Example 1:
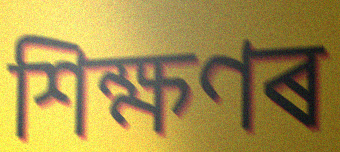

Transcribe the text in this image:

শিক্ষণৰ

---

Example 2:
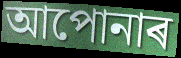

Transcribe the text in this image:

আপোনাৰ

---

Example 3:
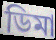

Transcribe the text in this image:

ডিমা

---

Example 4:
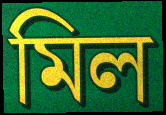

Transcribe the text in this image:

মিল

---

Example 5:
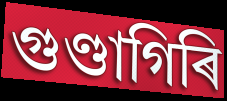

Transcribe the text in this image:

গুণ্ডাগিৰি